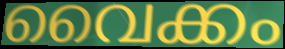
വൈക്കം